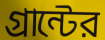
গ্রান্টের